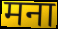
मना